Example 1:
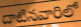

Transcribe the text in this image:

దాటినవారిలో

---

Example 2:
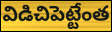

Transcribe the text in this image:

విడిచిపెట్టేంత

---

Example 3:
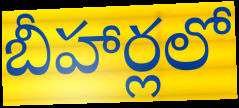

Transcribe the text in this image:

బీహార్లలో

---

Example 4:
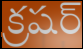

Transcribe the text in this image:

క్రషర్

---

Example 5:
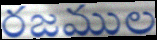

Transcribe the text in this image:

రజముల